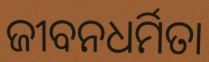
ଜୀବନଧର୍ମିତା